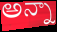
అన్నా